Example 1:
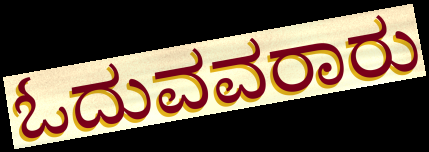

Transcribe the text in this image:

ಓದುವವರಾರು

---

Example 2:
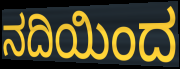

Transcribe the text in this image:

ನದಿಯಿಂದ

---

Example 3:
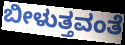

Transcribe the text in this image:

ಬೀಳುತ್ತವಂತೆ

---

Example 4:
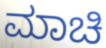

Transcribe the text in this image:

ಮಾಚಿ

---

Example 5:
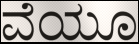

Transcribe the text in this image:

ವೆಯೂ